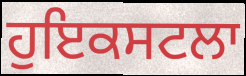
ਹੁਇਕਸਟਲਾ